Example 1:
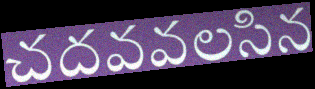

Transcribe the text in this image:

చదవవలసిన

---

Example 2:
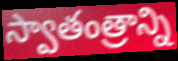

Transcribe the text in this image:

స్వాతంత్రాన్ని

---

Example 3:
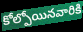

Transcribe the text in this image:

కోల్పోయినవారికి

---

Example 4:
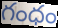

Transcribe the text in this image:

గంధం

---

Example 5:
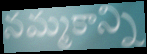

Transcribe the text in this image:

నమ్మకాన్ని